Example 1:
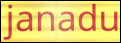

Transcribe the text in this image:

janadu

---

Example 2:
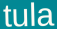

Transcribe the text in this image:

tula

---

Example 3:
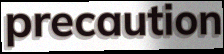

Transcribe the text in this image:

precaution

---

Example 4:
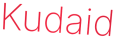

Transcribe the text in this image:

Kudaid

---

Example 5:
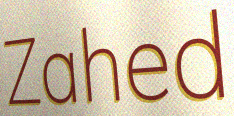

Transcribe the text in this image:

Zahed